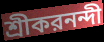
শ্রীকরনন্দী